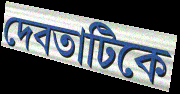
দেবতাটিকে